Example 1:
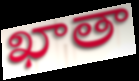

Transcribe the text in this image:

ఖాతా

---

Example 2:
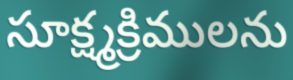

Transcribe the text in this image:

సూక్ష్మక్రిములను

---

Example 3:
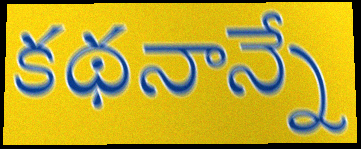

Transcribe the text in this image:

కథనాన్నే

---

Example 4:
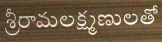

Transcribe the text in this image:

శ్రీరామలక్ష్మణులతో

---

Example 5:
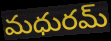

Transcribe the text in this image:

మధురమ్